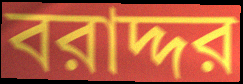
বরাদ্দর